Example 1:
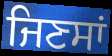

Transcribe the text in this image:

ਜਿਣਸਾਂ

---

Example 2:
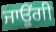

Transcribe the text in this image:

ਜਾਊਂਗੀ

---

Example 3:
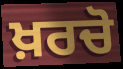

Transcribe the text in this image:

ਖ਼ਰਚੋ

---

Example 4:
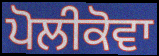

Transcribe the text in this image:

ਪੋਲੀਕੋਵਾ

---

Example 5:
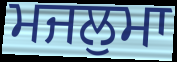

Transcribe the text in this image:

ਮਜਲੁਮਾ